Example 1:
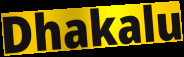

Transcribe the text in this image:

Dhakalu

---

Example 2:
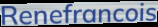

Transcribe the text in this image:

Renefrancois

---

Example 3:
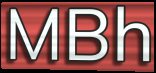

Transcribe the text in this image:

MBh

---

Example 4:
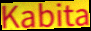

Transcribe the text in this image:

Kabita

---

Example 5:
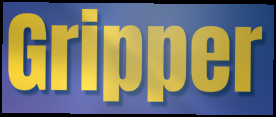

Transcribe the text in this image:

Gripper